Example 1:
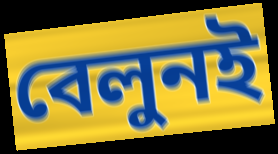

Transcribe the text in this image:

বেলুনই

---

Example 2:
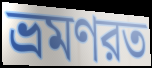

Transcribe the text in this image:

ভ্রমণরত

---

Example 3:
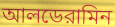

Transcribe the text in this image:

আলডেরামিন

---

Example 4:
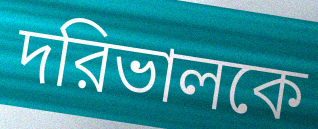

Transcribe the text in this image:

দরিভালকে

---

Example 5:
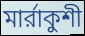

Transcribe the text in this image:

মার্রাকুশী